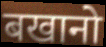
बखानो